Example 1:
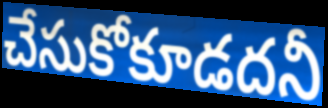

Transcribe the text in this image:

చేసుకోకూడదనీ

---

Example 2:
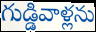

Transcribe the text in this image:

గుడ్డివాళ్లను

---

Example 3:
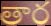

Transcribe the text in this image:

తార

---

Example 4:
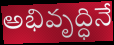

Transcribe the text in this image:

అభివృద్ధినే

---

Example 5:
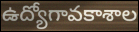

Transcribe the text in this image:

ఉద్యోగావకాశాల